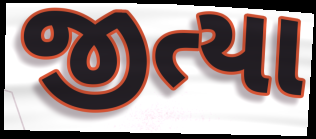
જીત્યા